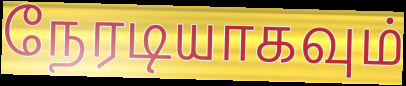
நேரடியாகவும்